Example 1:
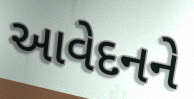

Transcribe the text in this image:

આવેદનને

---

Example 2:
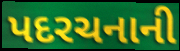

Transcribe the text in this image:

પદરચનાની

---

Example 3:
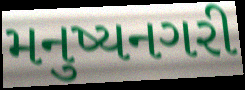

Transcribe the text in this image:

મનુષ્યનગરી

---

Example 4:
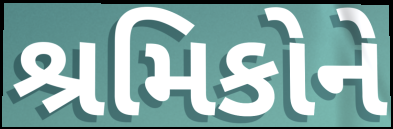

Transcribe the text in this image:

શ્રમિકોને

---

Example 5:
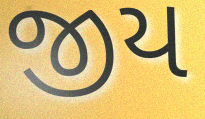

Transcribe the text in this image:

જીય